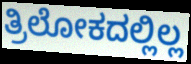
ತ್ರಿಲೋಕದಲ್ಲಿಲ್ಲ